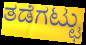
ತಡೆಗಟ್ಟು